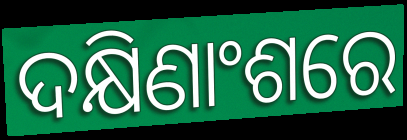
ଦକ୍ଷିଣାଂଶରେ